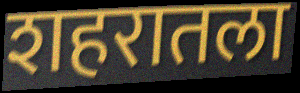
शहरातला